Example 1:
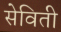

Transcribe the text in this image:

सेविती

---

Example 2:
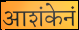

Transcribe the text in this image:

आशंकेनं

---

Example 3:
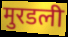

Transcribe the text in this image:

मुरडली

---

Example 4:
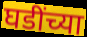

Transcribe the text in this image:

घडींच्या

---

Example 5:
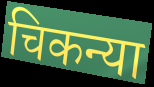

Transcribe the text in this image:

चिकन्या